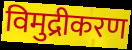
विमुद्रीकरण